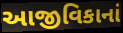
આજીવિકાનાં